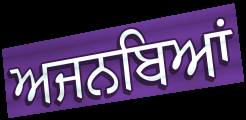
ਅਜਨਬਿਆਂ